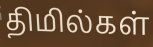
திமில்கள்